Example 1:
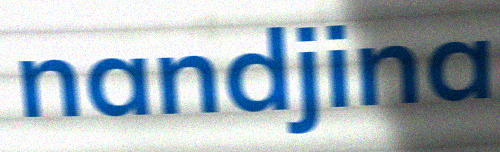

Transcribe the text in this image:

nandjina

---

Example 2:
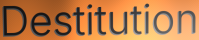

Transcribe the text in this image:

Destitution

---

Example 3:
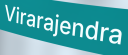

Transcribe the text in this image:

Virarajendra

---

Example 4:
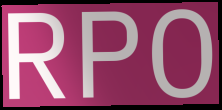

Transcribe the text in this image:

RPO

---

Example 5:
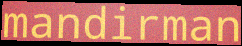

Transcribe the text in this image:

mandirman